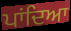
ਪਾਂਦਿਆ